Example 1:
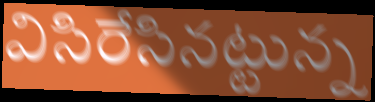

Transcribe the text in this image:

విసిరేసినట్టున్న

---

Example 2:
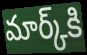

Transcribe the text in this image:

మార్క్‌కి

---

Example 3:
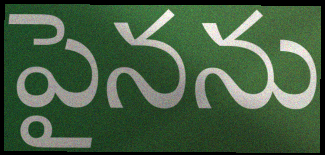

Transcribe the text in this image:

పైనను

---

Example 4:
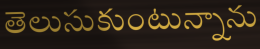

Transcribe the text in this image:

తెలుసుకుంటున్నాను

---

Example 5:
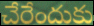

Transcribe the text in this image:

చేరేందుకు